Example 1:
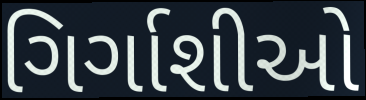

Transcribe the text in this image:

ગિર્ગાશીઓ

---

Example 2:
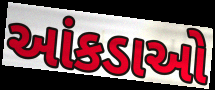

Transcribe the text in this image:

આંકડાઓ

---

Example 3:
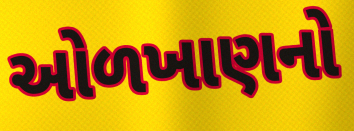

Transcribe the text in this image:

ઓળખાણનો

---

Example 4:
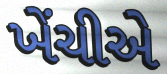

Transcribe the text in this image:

ખેંચીએ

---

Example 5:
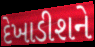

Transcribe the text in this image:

દેખાડીશને